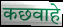
कछवाहे